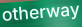
otherway